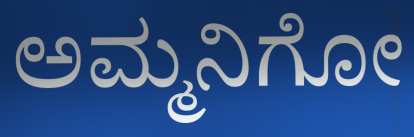
ಅಮ್ಮನಿಗೋ